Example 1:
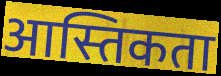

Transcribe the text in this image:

आस्तिकता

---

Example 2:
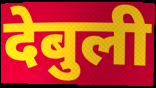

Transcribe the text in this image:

देबुली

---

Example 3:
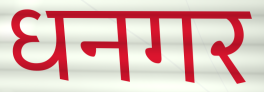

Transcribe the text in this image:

धनगर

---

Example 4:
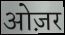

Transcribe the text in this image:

ओज़र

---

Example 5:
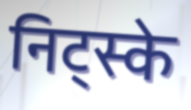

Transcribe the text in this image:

निट्स्के